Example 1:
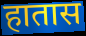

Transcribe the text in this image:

हातास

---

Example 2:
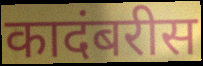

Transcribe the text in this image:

कादंबरीस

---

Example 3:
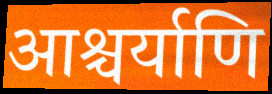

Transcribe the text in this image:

आश्चर्याणि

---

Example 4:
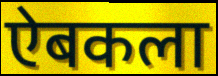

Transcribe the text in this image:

ऐबकला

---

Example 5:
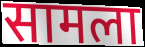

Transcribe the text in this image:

सामला